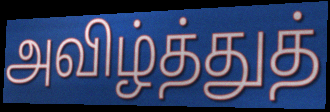
அவிழ்த்துத்